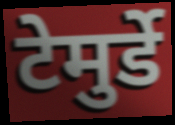
टेमुर्डे